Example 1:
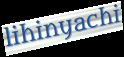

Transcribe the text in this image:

lihinyachi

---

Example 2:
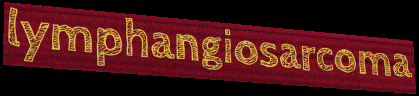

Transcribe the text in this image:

lymphangiosarcoma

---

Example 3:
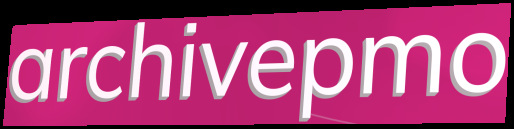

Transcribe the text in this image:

archivepmo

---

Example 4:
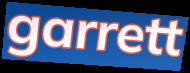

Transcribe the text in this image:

garrett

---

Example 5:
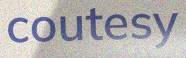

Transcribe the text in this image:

coutesy